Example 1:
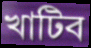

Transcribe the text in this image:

খাটিব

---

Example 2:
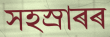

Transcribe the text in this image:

সহস্ৰাৰৰ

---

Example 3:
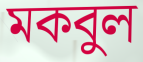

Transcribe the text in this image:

মকবুল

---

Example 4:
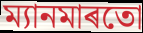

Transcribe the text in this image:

ম্যানমাৰতো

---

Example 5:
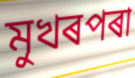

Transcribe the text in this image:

মুখৰপৰা